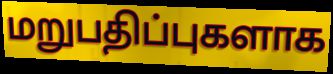
மறுபதிப்புகளாக